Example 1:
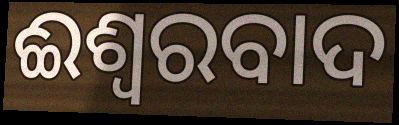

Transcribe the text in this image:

ଈଶ୍ବରବାଦ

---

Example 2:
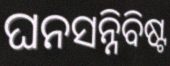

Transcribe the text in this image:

ଘନସନ୍ନିବିଷ୍ଟ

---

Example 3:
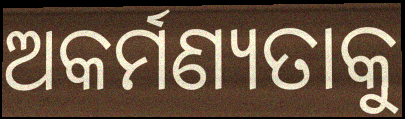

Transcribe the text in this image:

ଅକର୍ମଣ୍ୟତାକୁ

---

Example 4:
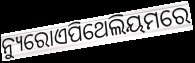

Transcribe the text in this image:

ନ୍ୟୁରୋଏପିଥେଲିୟମରେ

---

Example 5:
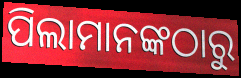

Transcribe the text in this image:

ପିଲାମାନଙ୍କଠାରୁ